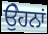
ਉੇਹਨਾਂ